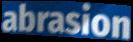
abrasion